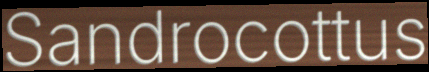
Sandrocottus